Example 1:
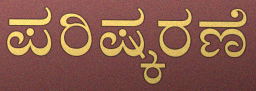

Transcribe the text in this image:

ಪರಿಷ್ಕರಣೆ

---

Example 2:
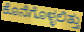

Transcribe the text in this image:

ಕೊನೆಗೊಳ್ಳಲಿತ್ತು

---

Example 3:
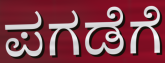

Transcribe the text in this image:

ಪಗಡೆಗೆ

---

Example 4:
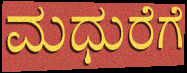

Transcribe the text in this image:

ಮಧುರೆಗೆ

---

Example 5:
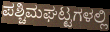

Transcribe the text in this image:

ಪಶ್ಚಿಮಘಟ್ಟಗಳಲ್ಲಿ